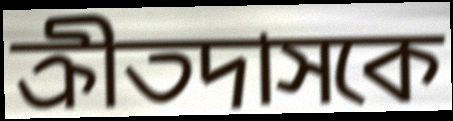
ক্রীতদাসকে